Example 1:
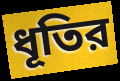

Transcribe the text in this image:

ধূতির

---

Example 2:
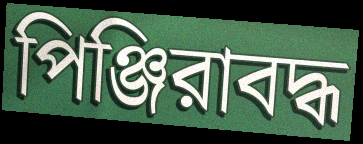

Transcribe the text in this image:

পিঞ্জিরাবদ্ধ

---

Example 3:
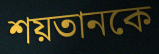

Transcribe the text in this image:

শয়তানকে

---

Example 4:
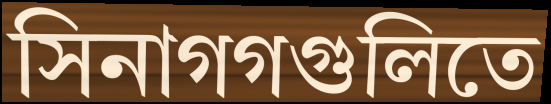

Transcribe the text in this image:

সিনাগগগুলিতে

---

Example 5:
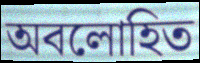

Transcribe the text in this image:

অবলোহিত